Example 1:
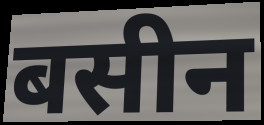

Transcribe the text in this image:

बसीन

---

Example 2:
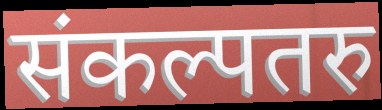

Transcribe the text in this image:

संकल्पतरु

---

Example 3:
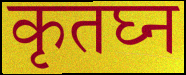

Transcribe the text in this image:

कृतघ्न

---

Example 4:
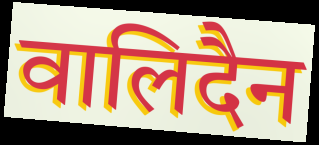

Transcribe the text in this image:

वालिदैन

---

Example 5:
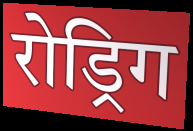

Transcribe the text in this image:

रोड्रिग